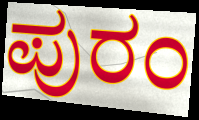
ಪುರಂ